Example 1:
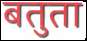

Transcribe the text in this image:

बतुता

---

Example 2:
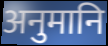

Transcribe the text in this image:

अनुमानि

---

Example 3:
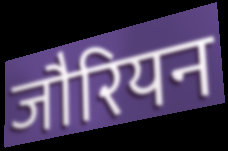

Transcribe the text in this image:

जौरियन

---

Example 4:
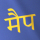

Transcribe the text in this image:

मैप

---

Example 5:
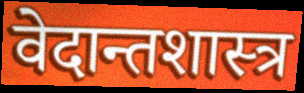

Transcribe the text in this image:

वेदान्तशास्त्र